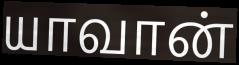
யாவான்